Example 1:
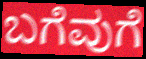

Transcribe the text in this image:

ಬಗೆವುಗೆ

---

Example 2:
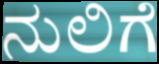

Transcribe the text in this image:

ನುಲಿಗೆ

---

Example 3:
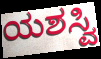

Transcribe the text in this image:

ಯಶಸ್ವಿ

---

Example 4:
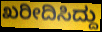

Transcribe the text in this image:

ಖರೀದಿಸಿದ್ದು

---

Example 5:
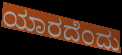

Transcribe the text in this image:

ಯಾರದೆಂದು